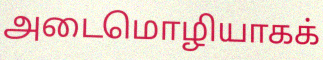
அடைமொழியாகக்